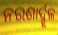
ନରଶାର୍ଦ୍ଦୂଳ